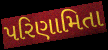
પરિણામિતા